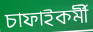
চাফাইকৰ্মী